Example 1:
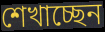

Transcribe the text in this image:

শেখাচ্ছেন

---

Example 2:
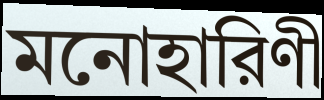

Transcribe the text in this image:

মনোহারিণী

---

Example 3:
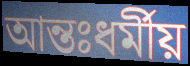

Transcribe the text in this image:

আন্তঃধর্মীয়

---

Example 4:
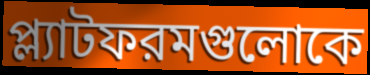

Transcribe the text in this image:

প্ল্যাটফরমগুলোকে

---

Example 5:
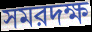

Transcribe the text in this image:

সমরদক্ষ